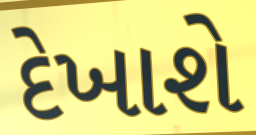
દેખાશે